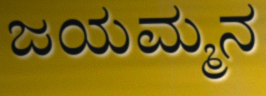
ಜಯಮ್ಮನ